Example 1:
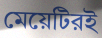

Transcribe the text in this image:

মেয়েটিরই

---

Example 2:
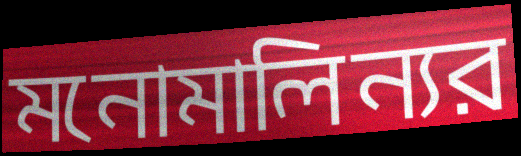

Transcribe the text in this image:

মনোমালিন্যর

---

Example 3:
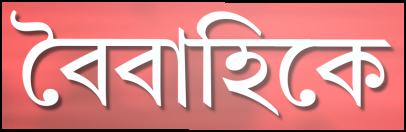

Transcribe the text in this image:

বৈবাহিকে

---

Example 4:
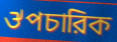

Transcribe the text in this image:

ঔপচারিক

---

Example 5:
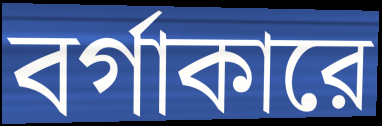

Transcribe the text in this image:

বর্গাকারে